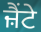
ਜ਼ੈਂਟੇ